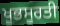
ਖੂਭਸੂਰਤੀ